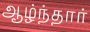
ஆழ்ந்தார்